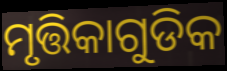
ମୃତ୍ତିକାଗୁଡିକ